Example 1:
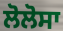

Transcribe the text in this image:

ਲੋਲੋਸਾ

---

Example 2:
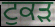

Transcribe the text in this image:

ਟੁਕੜ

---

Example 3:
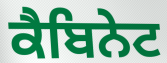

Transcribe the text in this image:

ਕੈਬਿਨੇਟ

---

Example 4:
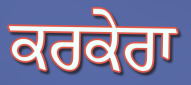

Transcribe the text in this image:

ਕਰਕੇਰਾ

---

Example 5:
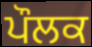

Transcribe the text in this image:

ਪੌਲਕ